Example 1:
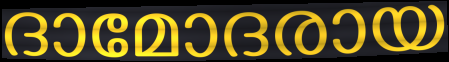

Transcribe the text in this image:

ദാമോദരായ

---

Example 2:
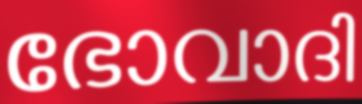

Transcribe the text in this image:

ഭോവാദി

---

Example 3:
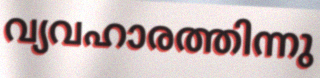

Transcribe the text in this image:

വ്യവഹാരത്തിന്നു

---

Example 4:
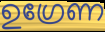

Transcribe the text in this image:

ഉഗ്രേണ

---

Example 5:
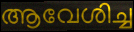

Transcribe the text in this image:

ആവേശിച്ച